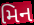
મિન